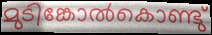
മുടിങ്കോൽകൊണ്ടു്